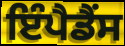
ਇੰਪੈਡੈਂਸ